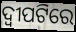
ଦ୍ୱୀପଟିରେ